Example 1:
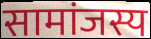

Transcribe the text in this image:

सामांजस्य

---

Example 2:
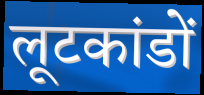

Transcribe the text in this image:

लूटकांडों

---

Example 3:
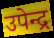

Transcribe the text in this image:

उपेन्द्र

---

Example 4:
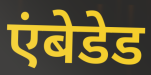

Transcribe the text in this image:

एंबेडेड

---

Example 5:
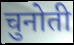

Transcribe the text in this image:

चुनोती